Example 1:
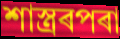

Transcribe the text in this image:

শাস্ত্ৰৰপৰা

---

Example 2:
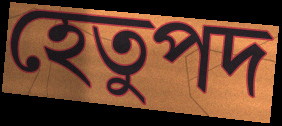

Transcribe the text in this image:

হেতুপদ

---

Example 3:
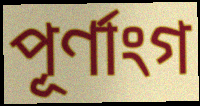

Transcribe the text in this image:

পূৰ্ণাংগ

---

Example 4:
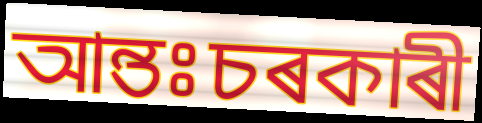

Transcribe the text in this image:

আন্তঃচৰকাৰী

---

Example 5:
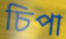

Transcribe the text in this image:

চিপা